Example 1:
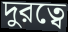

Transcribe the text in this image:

দুরত্বে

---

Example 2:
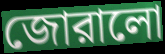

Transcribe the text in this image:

জোরালো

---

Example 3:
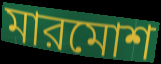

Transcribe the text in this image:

মারমোশ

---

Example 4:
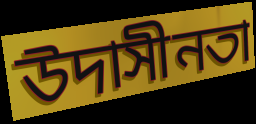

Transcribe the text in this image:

উদাসীনতা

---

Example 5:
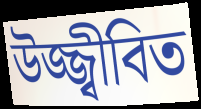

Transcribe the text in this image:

উজ্জ্বীবিত